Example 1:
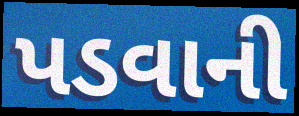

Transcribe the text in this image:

પડવાની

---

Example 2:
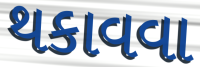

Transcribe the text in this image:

થકાવવા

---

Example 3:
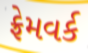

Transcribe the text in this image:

ફ્રેમવર્ક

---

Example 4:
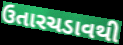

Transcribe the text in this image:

ઉતારચડાવથી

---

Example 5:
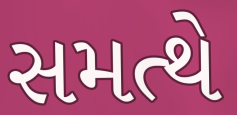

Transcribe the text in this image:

સમત્થે